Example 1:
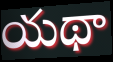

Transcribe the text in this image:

యథా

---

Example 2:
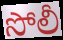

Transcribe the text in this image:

సోలీ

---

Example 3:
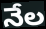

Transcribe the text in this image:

నేల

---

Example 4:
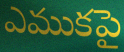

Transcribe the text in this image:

ఎముకపై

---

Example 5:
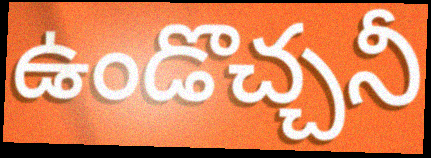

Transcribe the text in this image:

ఉండొచ్చనీ